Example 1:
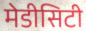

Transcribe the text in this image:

मेडीसिटी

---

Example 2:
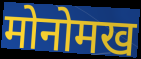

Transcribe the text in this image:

मोनोमख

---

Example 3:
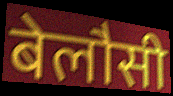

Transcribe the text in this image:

बेलौसी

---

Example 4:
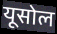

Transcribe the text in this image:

यूसोल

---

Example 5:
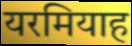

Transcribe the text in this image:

यरमियाह